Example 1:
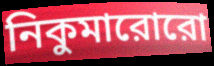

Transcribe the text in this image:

নিকুমারোরো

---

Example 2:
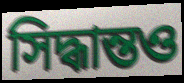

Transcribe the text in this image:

সিদ্ধান্তও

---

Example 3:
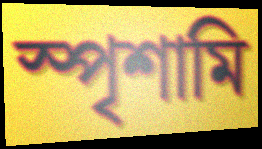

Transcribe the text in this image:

স্পৃশামি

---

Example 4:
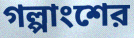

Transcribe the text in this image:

গল্পাংশের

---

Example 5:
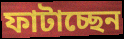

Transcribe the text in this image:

ফাটাচ্ছেন